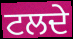
ਟਲਦੇ